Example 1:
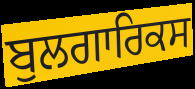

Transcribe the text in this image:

ਬੁਲਗਾਰਿਕਸ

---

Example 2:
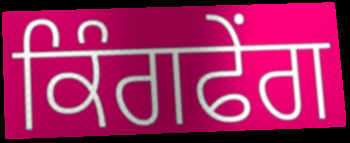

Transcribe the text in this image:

ਕਿੰਗਫੇਂਗ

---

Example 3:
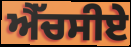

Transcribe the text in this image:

ਐੱਚਸੀਏ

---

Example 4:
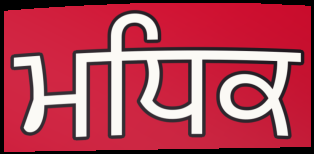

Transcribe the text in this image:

ਮਧਿਕ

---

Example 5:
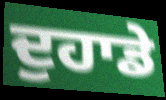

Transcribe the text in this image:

ਦੁਹਾਡੇ